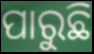
ପାରୁଛି